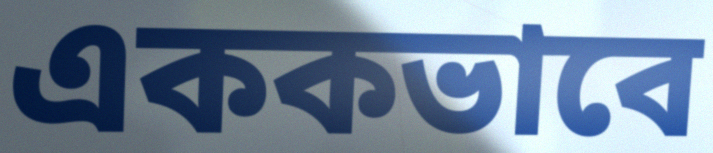
এককভাবে